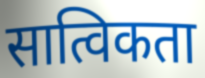
सात्विकता